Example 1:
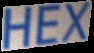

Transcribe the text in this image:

HEX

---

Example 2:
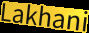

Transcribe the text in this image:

Lakhani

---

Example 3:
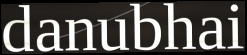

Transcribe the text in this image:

danubhai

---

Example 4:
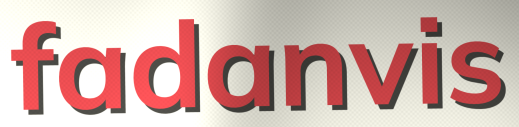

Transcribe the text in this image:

fadanvis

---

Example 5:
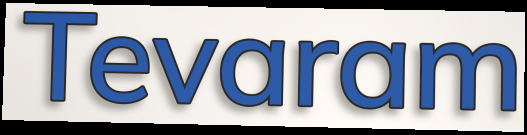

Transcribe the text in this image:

Tevaram